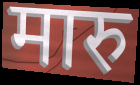
मारु